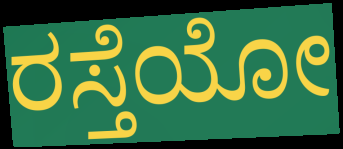
ರಸ್ತೆಯೋ